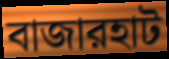
বাজারহাট